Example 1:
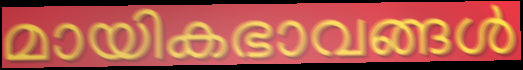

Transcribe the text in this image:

മായികഭാവങ്ങൾ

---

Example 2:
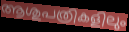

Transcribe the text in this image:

ആശുപത്രികളിലും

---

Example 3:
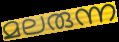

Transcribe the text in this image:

മലരുന്ന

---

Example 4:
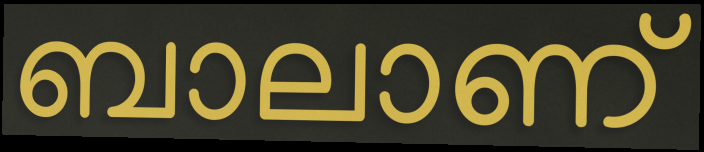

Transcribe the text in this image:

ബാലാണ്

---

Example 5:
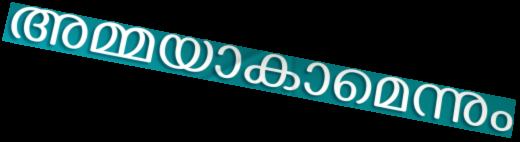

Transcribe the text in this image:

അമ്മയാകാമെന്നും